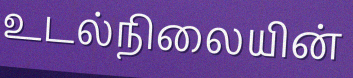
உடல்நிலையின்